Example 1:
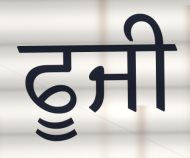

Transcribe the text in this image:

ਫੂਜੀ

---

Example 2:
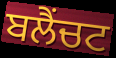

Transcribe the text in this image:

ਬਲੈਂਚਟ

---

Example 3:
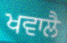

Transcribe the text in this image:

ਖਵਾਲੈ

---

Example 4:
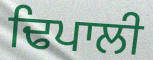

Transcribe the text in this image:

ਢਿਪਾਲੀ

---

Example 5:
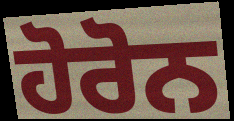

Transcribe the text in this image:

ਹੋਰੋਨ